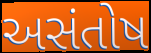
અસંતોષ